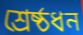
শ্রেষ্ঠধন